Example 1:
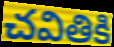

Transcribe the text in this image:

చవితికి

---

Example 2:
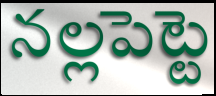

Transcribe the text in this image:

నల్లపెట్టె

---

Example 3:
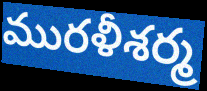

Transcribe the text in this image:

మురళీశర్మ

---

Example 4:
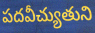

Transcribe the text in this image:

పదవీచ్యుతుని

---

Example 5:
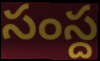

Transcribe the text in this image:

సంస్ద